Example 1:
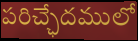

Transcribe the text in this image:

పరిచ్ఛేదములో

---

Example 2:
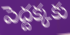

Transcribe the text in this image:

పెద్దక్కకు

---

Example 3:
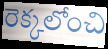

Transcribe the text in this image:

రెక్కలోంచి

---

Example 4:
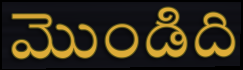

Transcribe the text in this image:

మొండిది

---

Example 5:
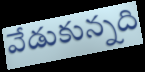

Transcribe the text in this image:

వేడుకున్నది